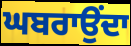
ਘਬਰਾਉਂਦਾ